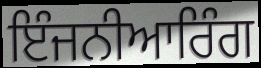
ਇੰਜਨੀਆਰਿੰਗ